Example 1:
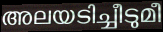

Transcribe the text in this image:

അലയടിച്ചീടുമീ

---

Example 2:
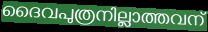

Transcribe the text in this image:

ദൈവപുത്രനില്ലാത്തവന്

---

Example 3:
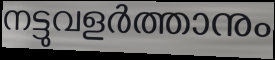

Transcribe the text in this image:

നട്ടുവളർത്താനും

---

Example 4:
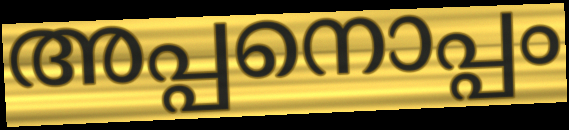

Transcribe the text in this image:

അപ്പനൊപ്പം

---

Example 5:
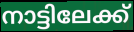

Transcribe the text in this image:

നാട്ടിലേക്ക്